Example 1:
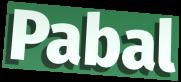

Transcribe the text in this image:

Pabal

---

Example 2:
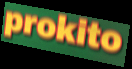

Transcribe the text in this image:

prokito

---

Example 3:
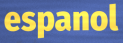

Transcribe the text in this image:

espanol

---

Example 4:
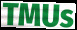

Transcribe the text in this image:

TMUs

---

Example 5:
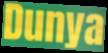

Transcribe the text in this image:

Dunya